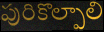
పురికొల్పాలి